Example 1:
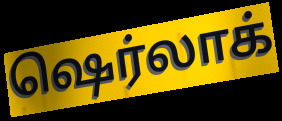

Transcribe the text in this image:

ஷெர்லாக்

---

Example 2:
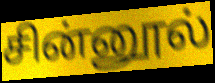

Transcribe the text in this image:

சின்னூல்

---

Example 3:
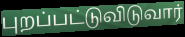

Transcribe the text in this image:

புறப்பட்டுவிடுவார்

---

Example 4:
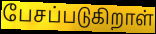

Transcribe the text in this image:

பேசப்படுகிறாள்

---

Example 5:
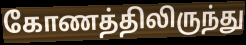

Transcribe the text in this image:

கோணத்திலிருந்து